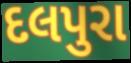
દલપુરા